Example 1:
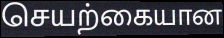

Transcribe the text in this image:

செயற்கையான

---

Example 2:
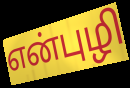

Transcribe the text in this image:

என்புழி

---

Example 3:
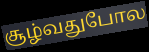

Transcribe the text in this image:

சூழ்வதுபோல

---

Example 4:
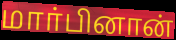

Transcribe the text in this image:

மார்பினான்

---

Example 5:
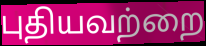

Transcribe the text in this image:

புதியவற்றை